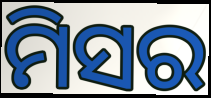
ମିସର